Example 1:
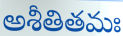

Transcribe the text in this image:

అశీతితమః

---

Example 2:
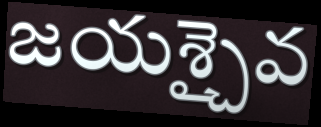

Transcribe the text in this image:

జయశ్చైవ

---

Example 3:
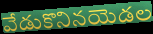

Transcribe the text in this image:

వేడుకొనినయెడల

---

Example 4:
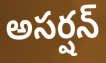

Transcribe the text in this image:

అసర్షన్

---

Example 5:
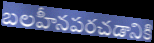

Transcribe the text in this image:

బలహీనపరచడానికి